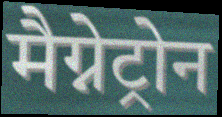
मैग्नेट्रोन